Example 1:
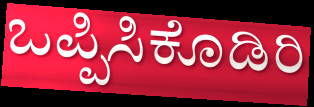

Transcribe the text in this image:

ಒಪ್ಪಿಸಿಕೊಡಿರಿ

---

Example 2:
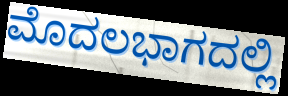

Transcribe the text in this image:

ಮೊದಲಭಾಗದಲ್ಲಿ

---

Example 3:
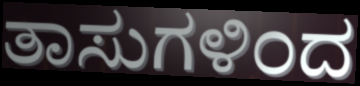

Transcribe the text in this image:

ತಾಸುಗಳಿಂದ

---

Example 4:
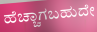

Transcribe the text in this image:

ಹೆಚ್ಚಾಗಬಹುದೇ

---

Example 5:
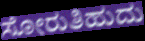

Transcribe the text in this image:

ಸೋರುತಿಹುದು